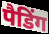
पैडिंग